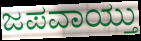
ಜಪವಾಯ್ತು